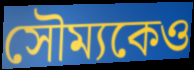
সৌম্যকেও